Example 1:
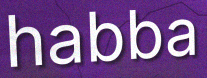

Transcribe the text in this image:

habba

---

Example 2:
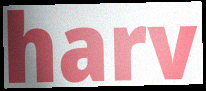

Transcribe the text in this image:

harv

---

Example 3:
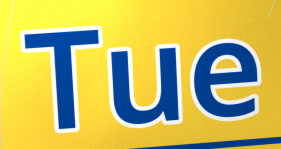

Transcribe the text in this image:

Tue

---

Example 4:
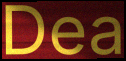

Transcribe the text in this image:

Dea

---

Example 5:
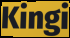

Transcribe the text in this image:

Kingi